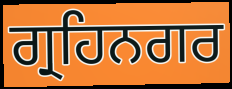
ਗ੍ਰਹਿਨਗਰ